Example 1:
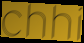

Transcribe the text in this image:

chhi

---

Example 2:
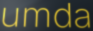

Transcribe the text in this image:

umda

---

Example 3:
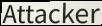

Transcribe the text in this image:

Attacker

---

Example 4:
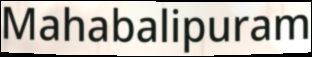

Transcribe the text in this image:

Mahabalipuram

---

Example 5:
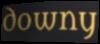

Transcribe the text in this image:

downy